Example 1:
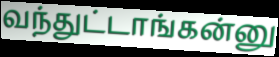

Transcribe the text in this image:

வந்துட்டாங்கன்னு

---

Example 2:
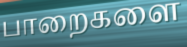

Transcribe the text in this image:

பாறைகளை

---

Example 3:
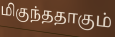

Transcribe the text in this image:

மிகுந்ததாகும்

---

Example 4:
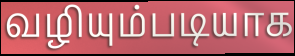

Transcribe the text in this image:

வழியும்படியாக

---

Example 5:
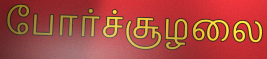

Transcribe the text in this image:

போர்ச்சூழலை